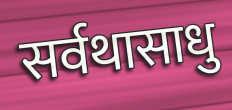
सर्वथासाधु